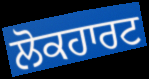
ਲੋਕਹਾਰਟ